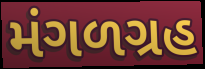
મંગળગ્રહ